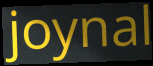
joynal